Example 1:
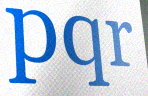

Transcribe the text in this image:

pqr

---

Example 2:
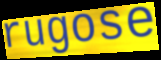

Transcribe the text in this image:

rugose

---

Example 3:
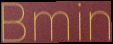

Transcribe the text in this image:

Bmin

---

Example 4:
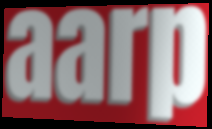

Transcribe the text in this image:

aarp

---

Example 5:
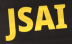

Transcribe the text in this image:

JSAI